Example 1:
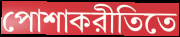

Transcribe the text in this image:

পোশাকরীতিতে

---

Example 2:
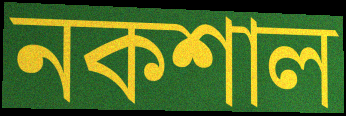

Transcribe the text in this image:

নকশাল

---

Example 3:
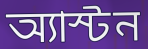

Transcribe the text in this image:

অ্যাস্টন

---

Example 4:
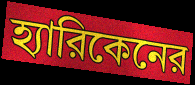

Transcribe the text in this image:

হ্যারিকেনের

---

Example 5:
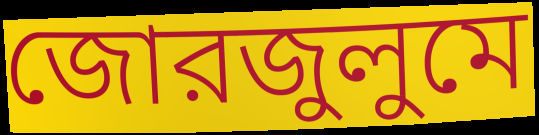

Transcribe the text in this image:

জোরজুলুমে